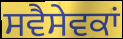
ਸਵੈਸੇਵਕਾਂ